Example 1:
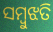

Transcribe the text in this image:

ସମ୍ବୁଝତି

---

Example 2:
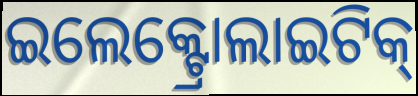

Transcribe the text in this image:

ଇଲେକ୍ଟ୍ରୋଲାଇଟିକ୍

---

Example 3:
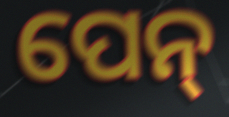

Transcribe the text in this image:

ପେନ୍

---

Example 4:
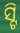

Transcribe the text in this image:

ସ୍ଟି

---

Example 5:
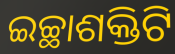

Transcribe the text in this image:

ଇଚ୍ଛାଶକ୍ତିଟି